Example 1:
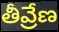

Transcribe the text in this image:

తీవ్రేణ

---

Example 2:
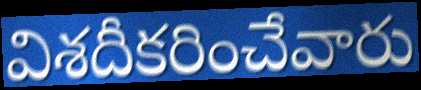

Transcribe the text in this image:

విశదీకరించేవారు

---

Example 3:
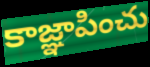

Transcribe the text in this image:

కాజ్ఞాపించు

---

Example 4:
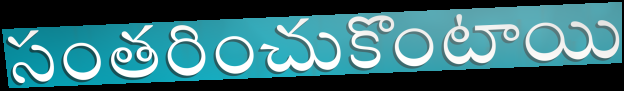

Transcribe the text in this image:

సంతరించుకొంటాయి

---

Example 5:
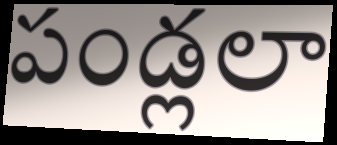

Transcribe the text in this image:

పండ్లలా